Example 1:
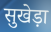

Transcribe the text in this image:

सुखेड़ा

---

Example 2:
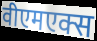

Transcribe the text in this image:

वीएमएक्स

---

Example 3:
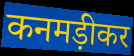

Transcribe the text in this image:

कनमड़ीकर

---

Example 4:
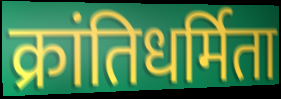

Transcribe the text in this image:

क्रांतिधर्मिता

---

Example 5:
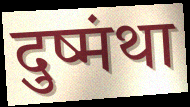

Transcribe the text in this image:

दुष्मंथा